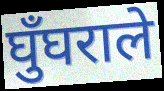
घुँघराले